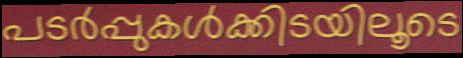
പടർപ്പുകൾക്കിടയിലൂടെ